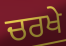
ਚਰਖੇ